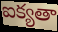
ఐక్యతా